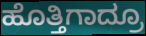
ಹೊತ್ತಿಗಾದ್ರೂ